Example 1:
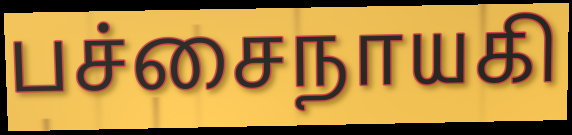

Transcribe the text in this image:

பச்சைநாயகி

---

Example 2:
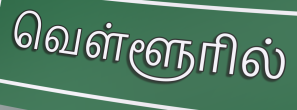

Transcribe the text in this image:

வெள்ளூரில்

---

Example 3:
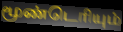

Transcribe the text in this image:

மூண்டெரியும்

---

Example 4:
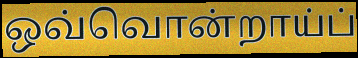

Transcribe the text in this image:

ஒவ்வொன்றாய்ப்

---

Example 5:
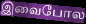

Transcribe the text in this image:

இவைபோல